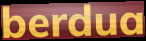
berdua